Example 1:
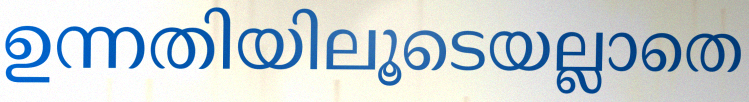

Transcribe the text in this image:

ഉന്നതിയിലൂടെയല്ലാതെ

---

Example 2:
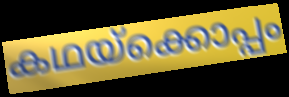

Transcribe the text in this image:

കഥയ്ക്കൊപ്പം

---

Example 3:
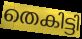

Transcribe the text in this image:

തെകിട്ടി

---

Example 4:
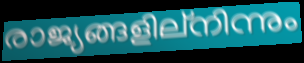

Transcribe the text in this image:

രാജ്യങ്ങളില്നിന്നും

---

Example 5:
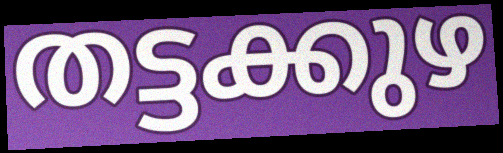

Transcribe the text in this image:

തട്ടക്കുഴ